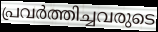
പ്രവർത്തിച്ചവരുടെ